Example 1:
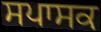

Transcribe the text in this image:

ਸਪਾਸਕ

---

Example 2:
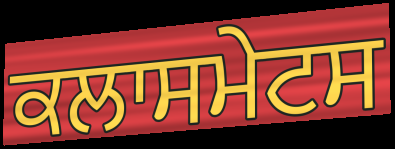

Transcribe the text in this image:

ਕਲਾਸਮੇਟਸ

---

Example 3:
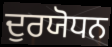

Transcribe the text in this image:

ਦੁਰਯੋਧਨ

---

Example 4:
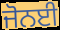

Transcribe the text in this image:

ਜੋਨਈ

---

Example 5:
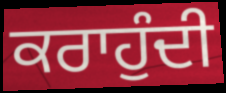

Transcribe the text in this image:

ਕਰਾਹੁੰਦੀ